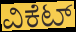
ವಿಕೆಟ್